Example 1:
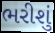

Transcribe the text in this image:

ભરીશું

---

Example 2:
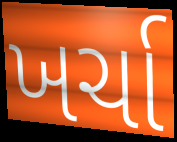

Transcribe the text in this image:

ખર્ચા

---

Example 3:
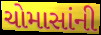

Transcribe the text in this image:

ચોમાસાંની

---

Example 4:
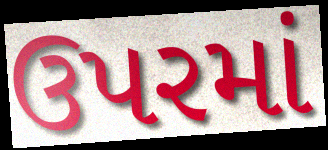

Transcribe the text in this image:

ઉપરમાં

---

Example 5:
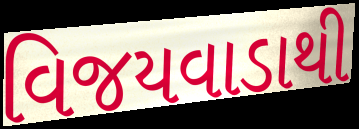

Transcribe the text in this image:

વિજયવાડાથી